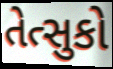
તેત્સુકો